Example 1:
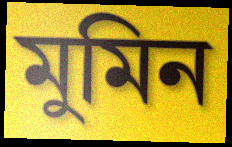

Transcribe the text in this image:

মুমিন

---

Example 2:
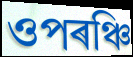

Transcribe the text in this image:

ওপৰঞ্চি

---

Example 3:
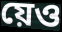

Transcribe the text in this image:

য়েও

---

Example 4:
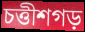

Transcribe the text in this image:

চত্তীশগড়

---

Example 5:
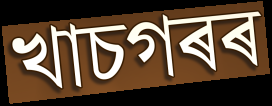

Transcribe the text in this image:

খাচগৰৰ